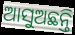
ଆସୁଅଛନ୍ତି